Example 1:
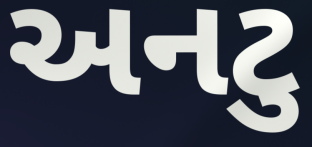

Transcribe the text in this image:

અનટુ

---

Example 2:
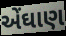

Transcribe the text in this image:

એંઘાણ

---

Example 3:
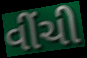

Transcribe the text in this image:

વીંચી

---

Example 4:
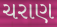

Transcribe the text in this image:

ચરાણ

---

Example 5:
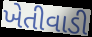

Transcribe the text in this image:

ખેતીવાડી